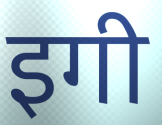
इगी